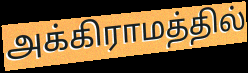
அக்கிராமத்தில்